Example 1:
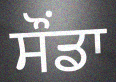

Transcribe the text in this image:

ਸੌਂਡਾ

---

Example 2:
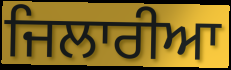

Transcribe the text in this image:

ਜਿਲਾਰੀਆ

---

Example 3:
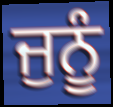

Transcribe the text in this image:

ਜੁਨੂੰ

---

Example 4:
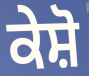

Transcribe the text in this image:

ਕੇਸ਼ੋ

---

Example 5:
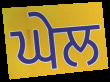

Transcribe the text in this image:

ਘੇਲ